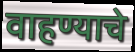
वाहण्याचे